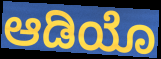
ಆಡಿಯೊ